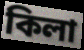
কিলা